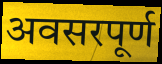
अवसरपूर्ण